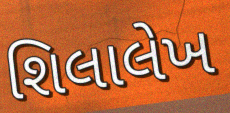
શિલાલેખ